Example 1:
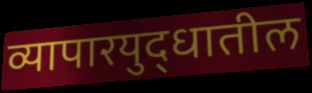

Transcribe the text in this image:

व्यापारयुद्धातील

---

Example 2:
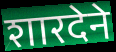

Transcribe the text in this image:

शारदेने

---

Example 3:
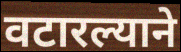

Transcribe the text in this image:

वटारल्याने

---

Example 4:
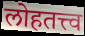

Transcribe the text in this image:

लोहतत्त्व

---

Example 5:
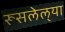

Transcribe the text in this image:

रूसलेल्या